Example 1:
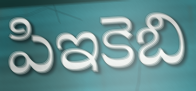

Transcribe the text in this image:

పిఇకెబి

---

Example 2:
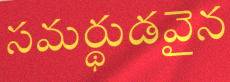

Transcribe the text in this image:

సమర్థుడవైన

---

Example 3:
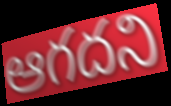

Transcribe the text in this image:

ఆగదని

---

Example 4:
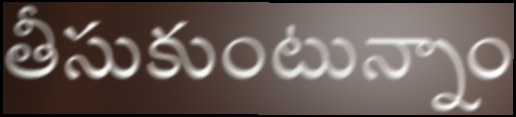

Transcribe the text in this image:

తీసుకుంటున్నాం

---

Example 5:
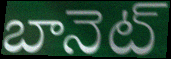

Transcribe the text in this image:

బానెట్